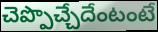
చెప్పొచ్చేదేంటంటే